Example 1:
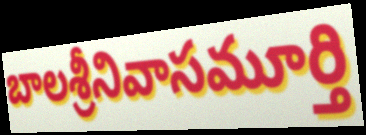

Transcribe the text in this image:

బాలశ్రీనివాసమూర్తి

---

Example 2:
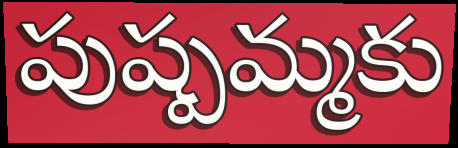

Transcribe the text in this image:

పుష్పమ్మకు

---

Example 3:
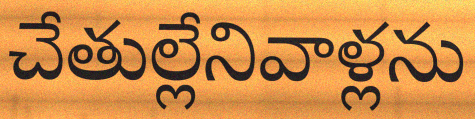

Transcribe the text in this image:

చేతుల్లేనివాళ్లను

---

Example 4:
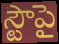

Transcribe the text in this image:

స్టౌపై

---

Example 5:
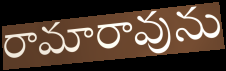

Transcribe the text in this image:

రామారావును